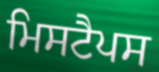
ਮਿਸਟੈਪਸ